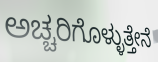
ಅಚ್ಚರಿಗೊಳ್ಳುತ್ತೇನೆ